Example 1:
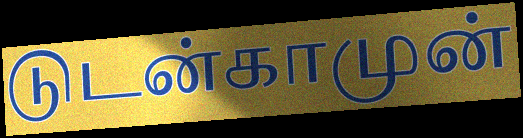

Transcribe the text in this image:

டுடன்காமுன்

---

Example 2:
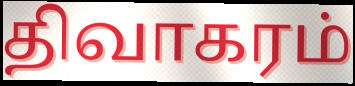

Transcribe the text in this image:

திவாகரம்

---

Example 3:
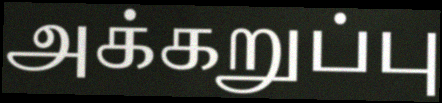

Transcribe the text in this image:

அக்கறுப்பு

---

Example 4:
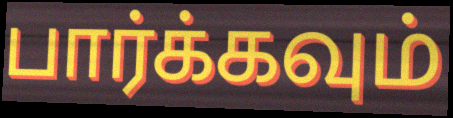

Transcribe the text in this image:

பார்க்கவும்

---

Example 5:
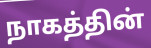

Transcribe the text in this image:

நாகத்தின்